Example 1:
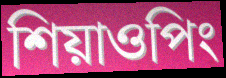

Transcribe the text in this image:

শিয়াওপিং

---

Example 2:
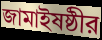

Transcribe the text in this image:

জামাইষষ্ঠীর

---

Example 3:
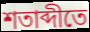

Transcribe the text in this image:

শতাব্দীতে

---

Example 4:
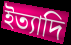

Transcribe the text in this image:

ইত্যাদি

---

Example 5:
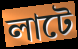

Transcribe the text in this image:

লাটে